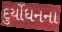
દુર્યોધનના